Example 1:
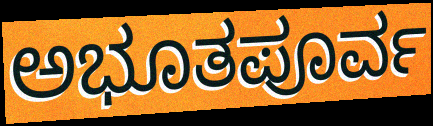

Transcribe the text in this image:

ಅಭೂತಪೂರ್ವ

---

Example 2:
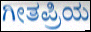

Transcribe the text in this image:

ಗೀತಪ್ರಿಯ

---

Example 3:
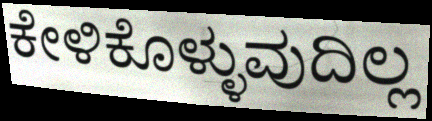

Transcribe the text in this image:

ಕೇಳಿಕೊಳ್ಳುವುದಿಲ್ಲ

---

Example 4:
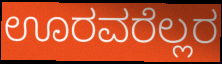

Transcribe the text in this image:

ಊರವರೆಲ್ಲರ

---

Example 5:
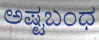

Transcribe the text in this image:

ಅಷ್ಟಬಂಧ